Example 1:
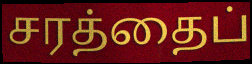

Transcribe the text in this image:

சரத்தைப்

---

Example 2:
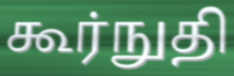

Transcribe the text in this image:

கூர்நுதி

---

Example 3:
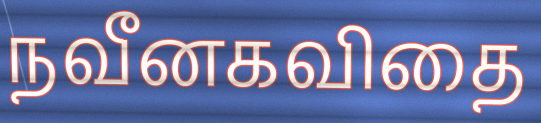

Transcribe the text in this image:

நவீனகவிதை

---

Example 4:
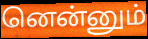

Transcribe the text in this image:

னென்னும்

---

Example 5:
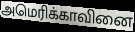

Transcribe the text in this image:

அமெரிக்காவினை